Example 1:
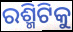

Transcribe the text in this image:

ରଶ୍ମିଟିକୁ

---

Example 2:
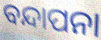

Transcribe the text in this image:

ବନ୍ଦାପନା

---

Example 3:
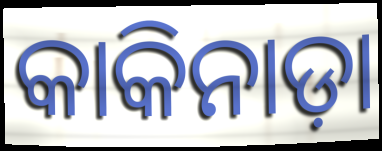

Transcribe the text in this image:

କାକିନାଡ଼ା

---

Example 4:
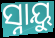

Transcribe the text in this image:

ସ୍ନାୟୁ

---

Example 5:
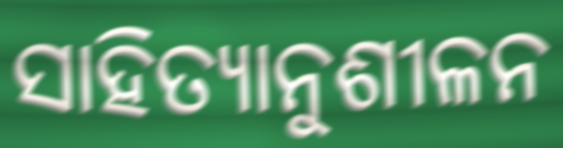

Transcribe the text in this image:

ସାହିତ୍ୟାନୁଶୀଳନ